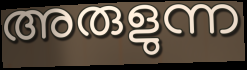
അരുളുന്ന